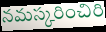
నమస్కరించిరి